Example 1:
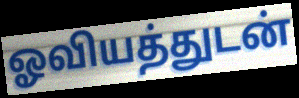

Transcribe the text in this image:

ஓவியத்துடன்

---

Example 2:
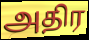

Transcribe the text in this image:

அதிர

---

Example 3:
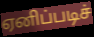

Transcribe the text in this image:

ஏனிப்படிச்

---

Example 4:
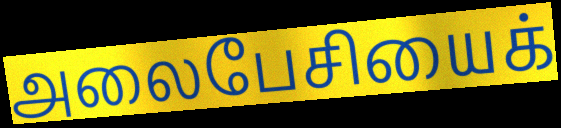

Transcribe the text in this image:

அலைபேசியைக்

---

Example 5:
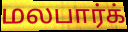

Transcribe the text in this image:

மலபார்க்